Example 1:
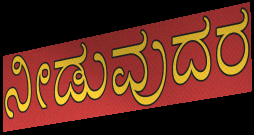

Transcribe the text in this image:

ನೀಡುವುದರ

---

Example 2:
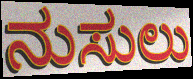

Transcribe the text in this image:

ನುಸುಲು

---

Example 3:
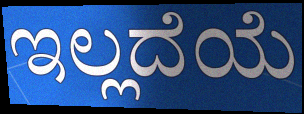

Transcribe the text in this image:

ಇಲ್ಲದೆಯೆ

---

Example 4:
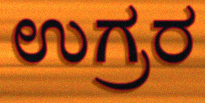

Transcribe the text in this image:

ಉಗ್ರರ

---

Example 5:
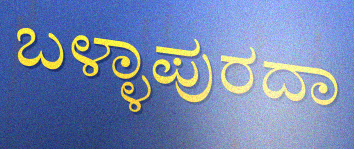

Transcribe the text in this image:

ಬಳ್ಳಾಪುರದಾ